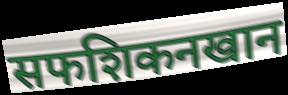
सफशिकनखान